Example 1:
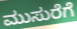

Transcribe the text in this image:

ಮುಸುರೆಗೆ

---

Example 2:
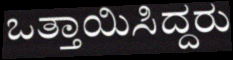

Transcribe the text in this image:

ಒತ್ತಾಯಿಸಿದ್ದರು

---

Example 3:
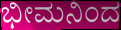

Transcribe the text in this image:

ಭೀಮನಿಂದ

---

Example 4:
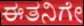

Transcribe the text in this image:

ಈತನಿಗೇ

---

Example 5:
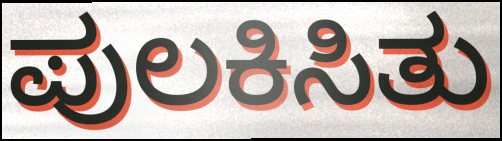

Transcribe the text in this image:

ಪುಲಕಿಸಿತು